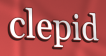
clepid